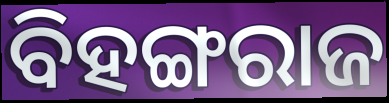
ବିହଙ୍ଗରାଜ